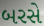
બરસે